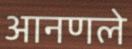
आनणले